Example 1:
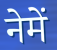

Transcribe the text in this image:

नेमें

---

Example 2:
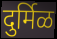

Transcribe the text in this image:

दुर्मिळ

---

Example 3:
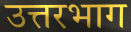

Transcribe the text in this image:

उत्तरभाग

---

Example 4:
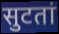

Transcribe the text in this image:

सुटतां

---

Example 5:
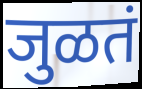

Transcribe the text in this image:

जुळतं